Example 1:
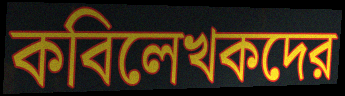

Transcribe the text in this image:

কবিলেখকদের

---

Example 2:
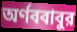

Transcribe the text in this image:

অর্ণববাবুর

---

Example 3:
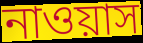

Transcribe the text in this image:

নাওয়াস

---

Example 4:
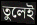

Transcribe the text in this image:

তুলেই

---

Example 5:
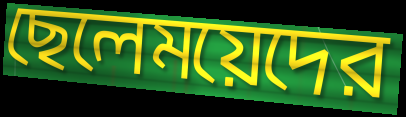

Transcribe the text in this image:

ছেলেময়েদের